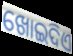
ଖୋଇଦିଏ